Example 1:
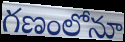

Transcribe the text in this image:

గణంలోనూ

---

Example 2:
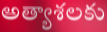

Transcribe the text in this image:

అత్యాశలకు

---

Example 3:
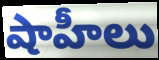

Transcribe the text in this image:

షాహీలు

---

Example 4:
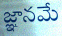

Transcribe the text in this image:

జ్ఞానమే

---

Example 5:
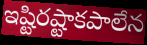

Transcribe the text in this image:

ఇష్టిరష్టాకపాలేన